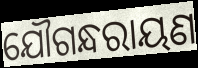
ଯୌଗନ୍ଧରାୟଣ